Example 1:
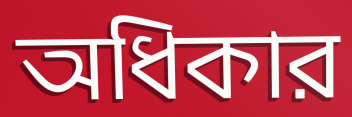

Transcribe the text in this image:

অধিকার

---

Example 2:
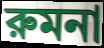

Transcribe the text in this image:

রুমনা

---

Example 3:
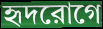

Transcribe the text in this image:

হৃদরোগে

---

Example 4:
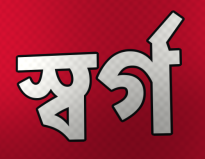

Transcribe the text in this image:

স্বর্গ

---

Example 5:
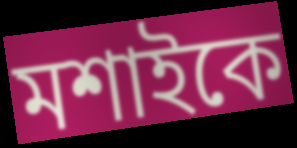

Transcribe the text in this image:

মশাইকে